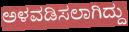
ಅಳವಡಿಸಲಾಗಿದ್ದು